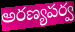
అరణ్యపర్వ